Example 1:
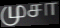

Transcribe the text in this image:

முசா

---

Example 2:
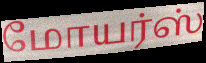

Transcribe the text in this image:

மோயர்ஸ்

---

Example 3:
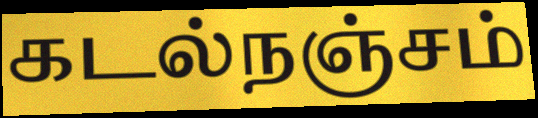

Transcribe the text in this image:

கடல்நஞ்சம்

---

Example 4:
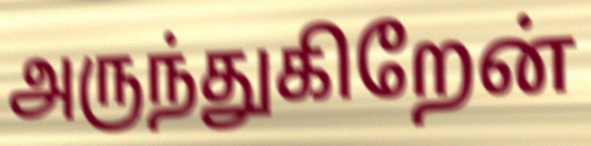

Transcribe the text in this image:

அருந்துகிறேன்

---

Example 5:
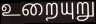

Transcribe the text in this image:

உறையுறு